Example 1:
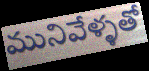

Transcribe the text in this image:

మునివేళ్ళతో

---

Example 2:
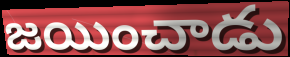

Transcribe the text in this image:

జయించాడు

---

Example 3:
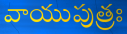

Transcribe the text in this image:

వాయుపుత్రః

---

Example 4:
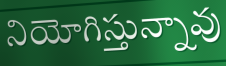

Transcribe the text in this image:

నియోగిస్తున్నావు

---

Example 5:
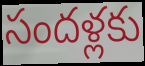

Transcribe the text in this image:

సందళ్లకు